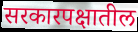
सरकारपक्षातील